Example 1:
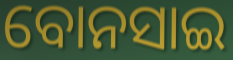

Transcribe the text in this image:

ବୋନସାଇ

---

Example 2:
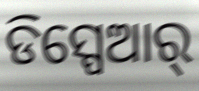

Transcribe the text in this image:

ଡିସ୍ପେଆର୍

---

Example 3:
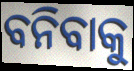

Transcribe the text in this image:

ବନିବାକୁ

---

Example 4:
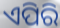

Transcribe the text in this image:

ଏପିରି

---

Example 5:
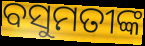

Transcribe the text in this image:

ବସୁମତୀଙ୍କ